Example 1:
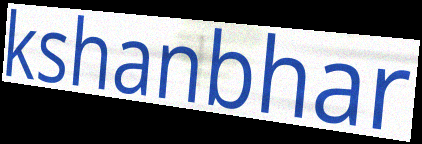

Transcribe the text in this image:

kshanbhar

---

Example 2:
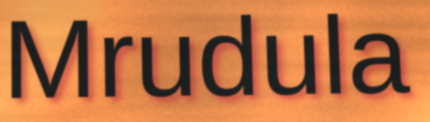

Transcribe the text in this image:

Mrudula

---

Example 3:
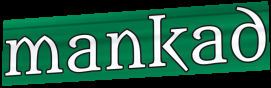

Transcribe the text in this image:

mankad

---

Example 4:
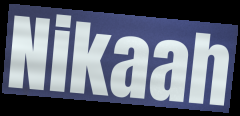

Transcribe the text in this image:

Nikaah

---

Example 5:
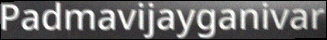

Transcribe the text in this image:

Padmavijayganivar